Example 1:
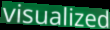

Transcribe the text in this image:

visualized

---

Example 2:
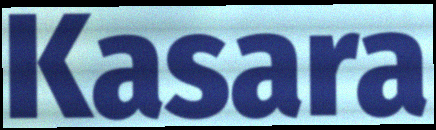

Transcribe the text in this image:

Kasara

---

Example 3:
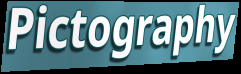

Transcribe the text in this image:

Pictography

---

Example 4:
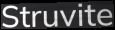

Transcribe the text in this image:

Struvite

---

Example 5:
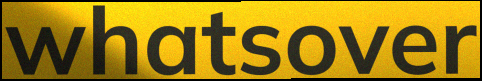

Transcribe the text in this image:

whatsover